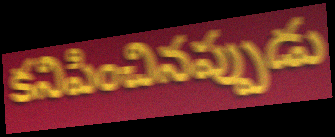
కనిపించినప్పుడు